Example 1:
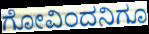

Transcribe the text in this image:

ಗೋವಿಂದನಿಗೂ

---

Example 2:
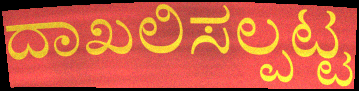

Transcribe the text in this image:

ದಾಖಲಿಸಲ್ಪಟ್ಟ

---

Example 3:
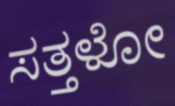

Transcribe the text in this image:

ಸತ್ತಳೋ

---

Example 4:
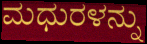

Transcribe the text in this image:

ಮಧುರಳನ್ನು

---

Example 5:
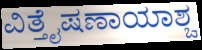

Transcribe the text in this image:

ವಿತ್ತೈಷಣಾಯಾಶ್ಚ